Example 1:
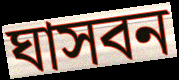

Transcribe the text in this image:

ঘাসবন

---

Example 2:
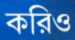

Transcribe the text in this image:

করিও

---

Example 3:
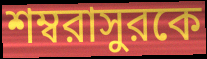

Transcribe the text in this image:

শম্বরাসুরকে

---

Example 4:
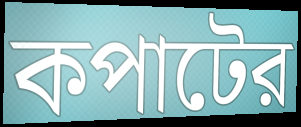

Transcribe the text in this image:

কপাটের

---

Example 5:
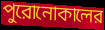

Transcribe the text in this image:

পুরোনোকালের